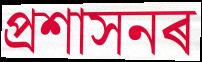
প্ৰশাসনৰ